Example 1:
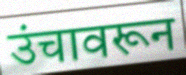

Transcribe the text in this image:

उंचावरून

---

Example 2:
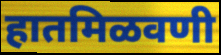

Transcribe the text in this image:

हातमिळवणी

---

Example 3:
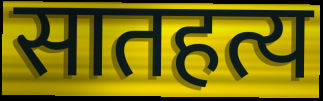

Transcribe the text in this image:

सातहत्य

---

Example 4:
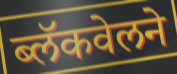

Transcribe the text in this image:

ब्लॅकवेलने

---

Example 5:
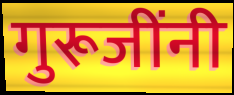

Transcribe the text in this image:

गुरूजींनी